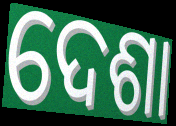
ଦେଶା